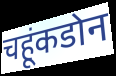
चहूंकडोन